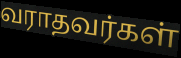
வராதவர்கள்